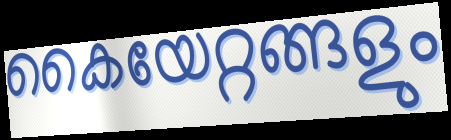
കൈയേറ്റങ്ങളും